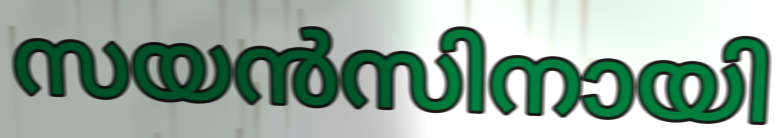
സയൻസിനായി